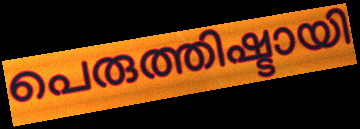
പെരുത്തിഷ്ടായി